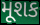
મૂશક